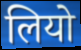
लियो